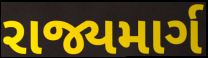
રાજ્યમાર્ગ